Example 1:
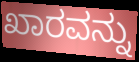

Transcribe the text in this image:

ಖಾರವನ್ನು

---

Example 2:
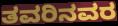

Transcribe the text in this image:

ತವರಿನವರ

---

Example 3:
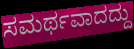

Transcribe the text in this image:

ಸಮರ್ಥವಾದದ್ದು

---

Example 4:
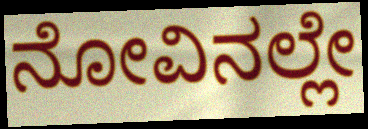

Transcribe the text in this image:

ನೋವಿನಲ್ಲೇ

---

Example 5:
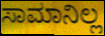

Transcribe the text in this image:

ಸಾಮಾನಿಲ್ಲ